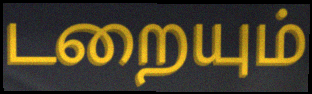
டறையும்